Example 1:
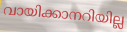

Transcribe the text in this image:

വായിക്കാനറിയില്ല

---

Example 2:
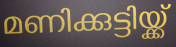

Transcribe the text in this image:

മണിക്കുട്ടിയ്ക്ക്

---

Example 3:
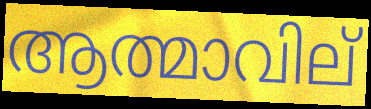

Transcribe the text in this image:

ആത്മാവില്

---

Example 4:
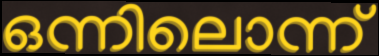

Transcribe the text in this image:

ഒന്നിലൊന്ന്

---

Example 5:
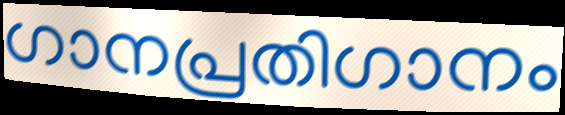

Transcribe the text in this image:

ഗാനപ്രതിഗാനം